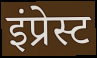
इंप्रेस्ट